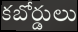
కబోర్డులు